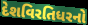
દેશવિરતિધરનો